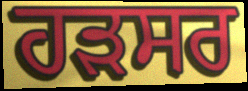
ਹੜਸਰ